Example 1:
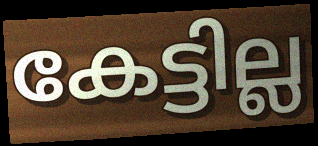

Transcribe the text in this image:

കേട്ടില്ല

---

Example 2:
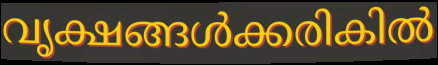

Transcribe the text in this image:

വൃക്ഷങ്ങൾക്കരികിൽ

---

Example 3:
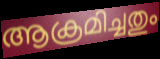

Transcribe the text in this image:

ആക്രമിച്ചതും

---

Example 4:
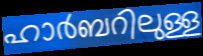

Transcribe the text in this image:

ഹാർബറിലുള്ള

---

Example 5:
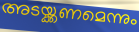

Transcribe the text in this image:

അടയ്ക്കണമെന്നും